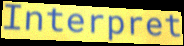
Interpret